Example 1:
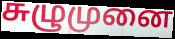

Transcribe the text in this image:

சுழுமுனை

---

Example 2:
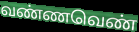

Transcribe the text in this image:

வண்ணவெண்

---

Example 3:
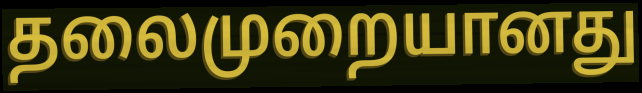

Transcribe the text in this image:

தலைமுறையானது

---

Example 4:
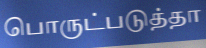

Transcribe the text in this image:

பொருட்படுத்தா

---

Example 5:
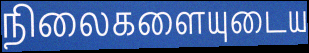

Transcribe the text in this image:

நிலைகளையுடைய